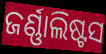
ଜର୍ଣ୍ଣାଲିଷ୍ଟସ